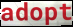
adopt